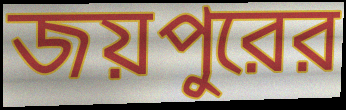
জয়পুরের